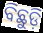
ବିଛୁଡ଼ି